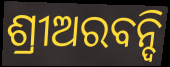
ଶ୍ରୀଅରବନ୍ଦି